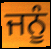
ਜਨੂੰ